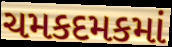
ચમકદમકમાં